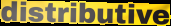
distributive